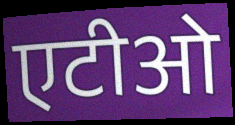
एटीओ